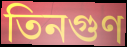
তিনগুণ